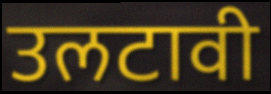
उलटावी